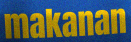
makanan